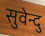
सुवेन्दु